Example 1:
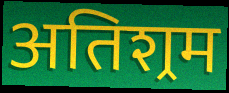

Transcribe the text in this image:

अतिश्रम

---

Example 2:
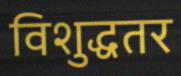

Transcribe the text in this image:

विशुद्धतर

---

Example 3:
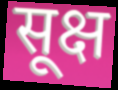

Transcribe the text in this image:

सूक्ष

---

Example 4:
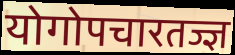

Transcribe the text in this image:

योगोपचारतज्ज्ञ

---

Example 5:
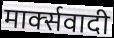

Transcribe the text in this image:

मार्क्‍सवादी